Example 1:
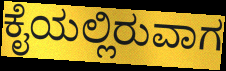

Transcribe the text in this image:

ಕೈಯಲ್ಲಿರುವಾಗ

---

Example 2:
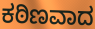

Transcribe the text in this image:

ಕಠಿಣವಾದ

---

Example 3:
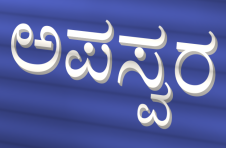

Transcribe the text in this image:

ಅಪಸ್ವರ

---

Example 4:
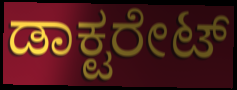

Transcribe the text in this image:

ಡಾಕ್ಟರೇಟ್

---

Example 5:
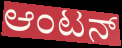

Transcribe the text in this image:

ಆಂಟನ್